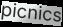
picnics